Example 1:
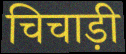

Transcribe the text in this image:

चिचाड़ी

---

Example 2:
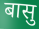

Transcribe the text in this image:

बासु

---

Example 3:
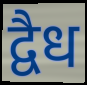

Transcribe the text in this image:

द्वैध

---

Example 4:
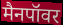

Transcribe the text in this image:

मैनपॉवर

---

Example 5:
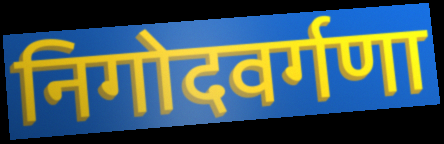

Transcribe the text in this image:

निगोदवर्गणा